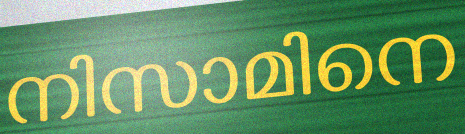
നിസാമിനെ